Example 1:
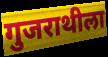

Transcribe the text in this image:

गुजराथीला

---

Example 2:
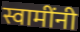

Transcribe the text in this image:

स्वामींनी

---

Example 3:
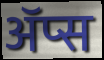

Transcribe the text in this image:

ॲप्स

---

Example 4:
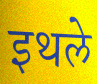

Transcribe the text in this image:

इथले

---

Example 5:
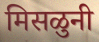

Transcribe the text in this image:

मिसळुनी